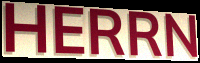
HERRN